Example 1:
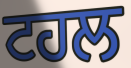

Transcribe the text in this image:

ਟਹਲ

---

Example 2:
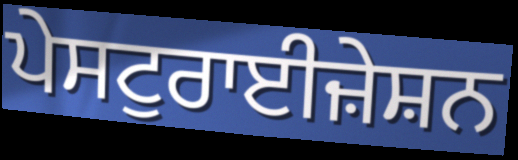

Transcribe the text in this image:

ਪੇਸਟੁਰਾਈਜ਼ੇਸ਼ਨ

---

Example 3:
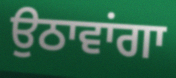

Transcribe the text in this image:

ਉਠਾਵਾਂਗਾ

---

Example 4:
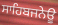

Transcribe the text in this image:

ਸਾਹਿਬਜਨੇਊ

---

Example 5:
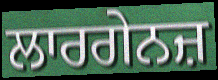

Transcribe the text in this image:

ਲਾਰਗੇਨਜ਼